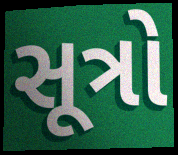
સૂત્રો